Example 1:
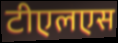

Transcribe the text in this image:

टीएलएस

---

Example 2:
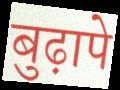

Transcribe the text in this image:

बुढ़ापे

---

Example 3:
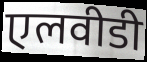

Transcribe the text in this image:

एलवीडी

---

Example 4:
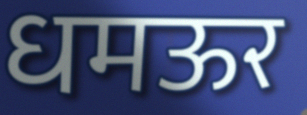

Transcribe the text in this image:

धमऊर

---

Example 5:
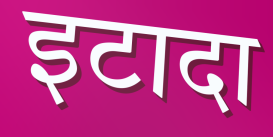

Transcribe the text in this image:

इटादा